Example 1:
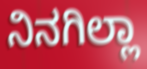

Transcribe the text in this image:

ನಿನಗಿಲ್ಲಾ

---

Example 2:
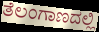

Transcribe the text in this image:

ತೆಲಂಗಾಣದಲ್ಲಿ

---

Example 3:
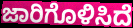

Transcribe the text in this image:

ಜಾರಿಗೊಳಿಸಿದೆ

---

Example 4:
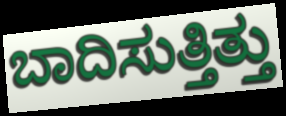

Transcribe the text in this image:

ಬಾದಿಸುತ್ತಿತ್ತು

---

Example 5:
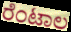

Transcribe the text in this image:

ರೆಂಟಾಲ